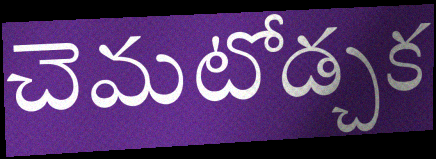
చెమటోడ్చక